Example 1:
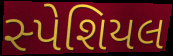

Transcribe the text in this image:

સ્પેશિયલ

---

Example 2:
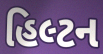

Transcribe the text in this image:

હિલ્ટન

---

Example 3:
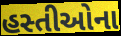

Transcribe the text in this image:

હસ્તીઓના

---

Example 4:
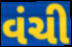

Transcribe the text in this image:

વંચી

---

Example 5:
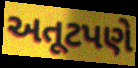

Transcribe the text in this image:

અતૂટપણે